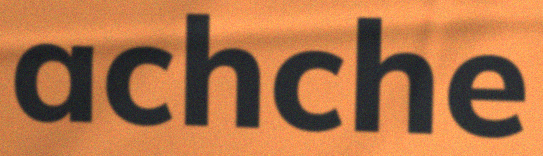
achche